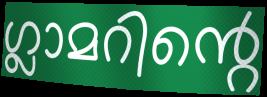
ഗ്ലാമറിന്റെ